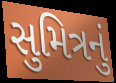
સુમિત્રનું